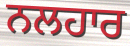
ਨਲਹਾਰ